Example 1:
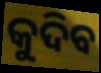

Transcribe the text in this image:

କୁଦିବ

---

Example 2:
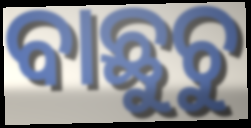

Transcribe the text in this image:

ବାଛୁଚୁ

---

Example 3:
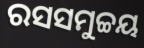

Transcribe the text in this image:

ରସସମୁଚ୍ଚୟ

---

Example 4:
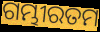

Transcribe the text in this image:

ଗମ୍ଭୀରତମ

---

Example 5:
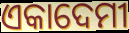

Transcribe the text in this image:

ଏକାଦେମୀ